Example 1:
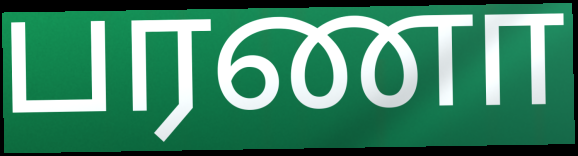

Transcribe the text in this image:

பரணா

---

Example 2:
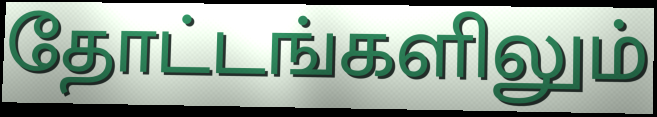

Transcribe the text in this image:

தோட்டங்களிலும்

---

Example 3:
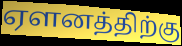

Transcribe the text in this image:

ஏளனத்திற்கு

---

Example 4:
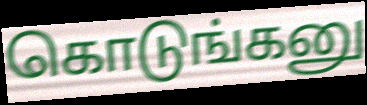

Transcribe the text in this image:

கொடுங்கனு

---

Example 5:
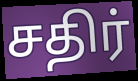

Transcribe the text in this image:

சதிர்